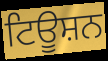
ਟਿਊਸ਼ਨ